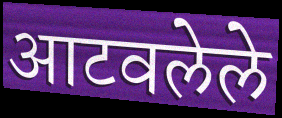
आटवलेले